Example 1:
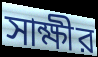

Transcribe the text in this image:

সাক্ষীর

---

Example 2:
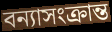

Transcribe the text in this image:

বন্যাসংক্রান্ত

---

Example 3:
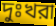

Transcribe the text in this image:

দুঃখরা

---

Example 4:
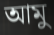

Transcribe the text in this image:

আমু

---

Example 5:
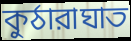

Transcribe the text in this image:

কুঠারাঘাত